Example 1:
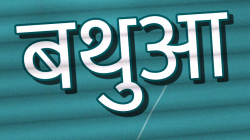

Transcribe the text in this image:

बथुआ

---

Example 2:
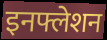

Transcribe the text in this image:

इनफ्लेशन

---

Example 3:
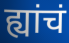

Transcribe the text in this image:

ह्यांचं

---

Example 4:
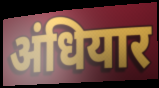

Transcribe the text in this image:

अंधियार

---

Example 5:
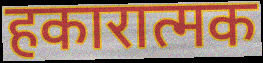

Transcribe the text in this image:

हकारात्मक